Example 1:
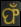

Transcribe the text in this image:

ଫଁ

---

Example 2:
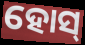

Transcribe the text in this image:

ହୋସ୍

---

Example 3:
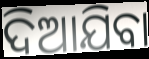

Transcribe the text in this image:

ଦିଆଯିବା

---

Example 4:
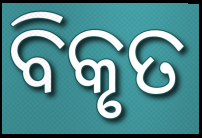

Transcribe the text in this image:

ବିକୃତ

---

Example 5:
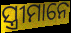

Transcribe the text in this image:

ସ୍ତ୍ରୀମାନେ